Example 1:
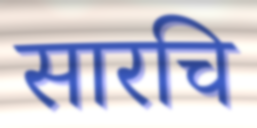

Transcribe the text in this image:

सारचि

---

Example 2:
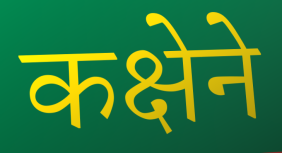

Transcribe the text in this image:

कक्षेने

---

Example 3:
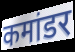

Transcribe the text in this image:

कमांडर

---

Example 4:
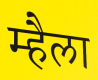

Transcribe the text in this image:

म्हैला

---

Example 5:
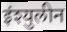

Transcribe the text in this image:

इंश्युलीन